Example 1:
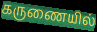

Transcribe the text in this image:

கருணையில்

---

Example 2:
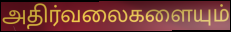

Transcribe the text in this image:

அதிர்வலைகளையும்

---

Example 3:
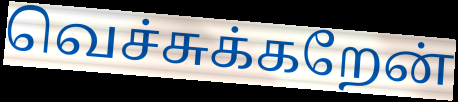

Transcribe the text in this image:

வெச்சுக்கறேன்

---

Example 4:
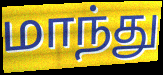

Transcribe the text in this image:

மாந்து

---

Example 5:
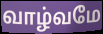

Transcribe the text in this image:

வாழ்வமே